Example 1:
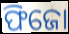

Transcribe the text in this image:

ଫିଜୋ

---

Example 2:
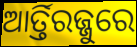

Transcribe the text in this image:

ଆର୍ତ୍ତିରଜ୍ଜୁରେ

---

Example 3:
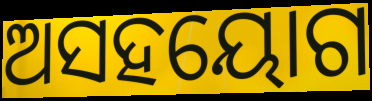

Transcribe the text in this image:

ଅସହୟୋଗ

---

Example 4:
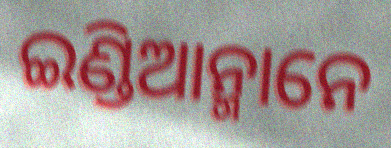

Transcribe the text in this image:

ଇଣ୍ଡିଆନ୍ମାନେ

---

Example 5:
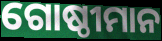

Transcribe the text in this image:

ଗୋଷ୍ଠୀମାନ